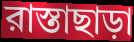
রাস্তাছাড়া